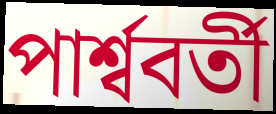
পাৰ্শ্ববৰ্তী